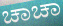
ಚಾಚಾ